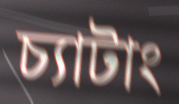
চ্যাটাং